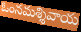
ఓంనమశ్శివాయ